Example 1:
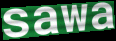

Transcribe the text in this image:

sawa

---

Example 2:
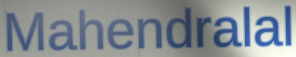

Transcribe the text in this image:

Mahendralal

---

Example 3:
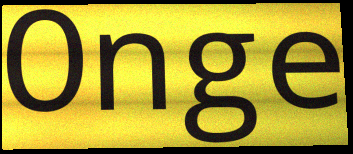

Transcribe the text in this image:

Onge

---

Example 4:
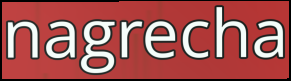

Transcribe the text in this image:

nagrecha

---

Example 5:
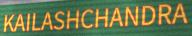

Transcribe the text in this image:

KAILASHCHANDRA